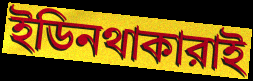
ইডিনথাকারাই